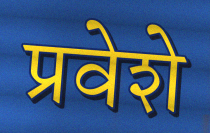
प्रवेशे